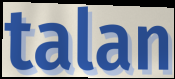
talan